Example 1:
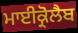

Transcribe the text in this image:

ਮਾਈਕ੍ਰੋਲੈਬ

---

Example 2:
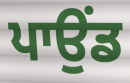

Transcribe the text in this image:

ਪਾਉਂਡ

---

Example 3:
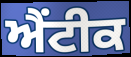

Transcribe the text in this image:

ਐਂਟੀਕ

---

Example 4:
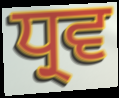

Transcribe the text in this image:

ਧ੍ਰਵ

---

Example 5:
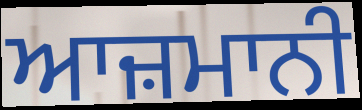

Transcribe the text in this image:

ਆਜ਼ਮਾਨੀ